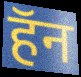
हॅन